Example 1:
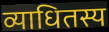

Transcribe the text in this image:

व्याधितस्य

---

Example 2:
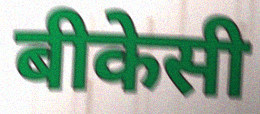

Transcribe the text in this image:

बीकेसी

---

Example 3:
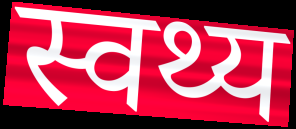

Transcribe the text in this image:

स्वथ्य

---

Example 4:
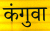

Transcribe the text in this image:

कंगुवा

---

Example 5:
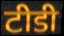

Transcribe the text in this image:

टीडी